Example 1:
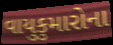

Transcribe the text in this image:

વાયુકુમારોના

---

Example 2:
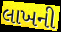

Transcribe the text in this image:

લાખની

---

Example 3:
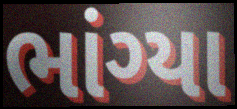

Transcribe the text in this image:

ભાંગ્યા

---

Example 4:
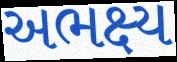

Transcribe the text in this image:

અભક્ષ્ય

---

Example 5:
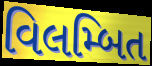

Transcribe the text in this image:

વિલમ્બિત